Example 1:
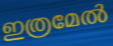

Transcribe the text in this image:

ഇത്രമേൽ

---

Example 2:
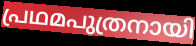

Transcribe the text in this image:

പ്രഥമപുത്രനായി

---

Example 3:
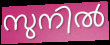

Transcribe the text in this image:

സുനിൽ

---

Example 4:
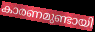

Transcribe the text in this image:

കാരണമുണ്ടായി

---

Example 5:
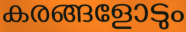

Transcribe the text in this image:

കരങ്ങളോടും